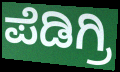
ಪೆಡಿಗ್ರಿ